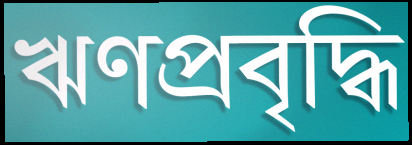
ঋণপ্রবৃদ্ধি